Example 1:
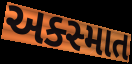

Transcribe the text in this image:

અક્સ્માત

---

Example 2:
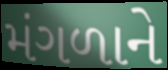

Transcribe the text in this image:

મંગળાને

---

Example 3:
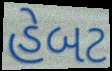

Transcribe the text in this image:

હેબટ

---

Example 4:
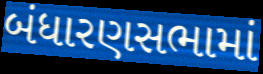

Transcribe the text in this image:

બંધારણસભામાં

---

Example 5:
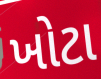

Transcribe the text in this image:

ખોટા